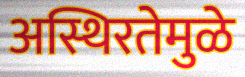
अस्थिरतेमुळे